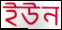
ইউন